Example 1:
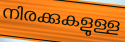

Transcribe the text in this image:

നിരക്കുകളുള്ള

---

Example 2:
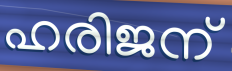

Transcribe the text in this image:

ഹരിജന്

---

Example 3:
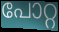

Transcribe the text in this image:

പോറ്റ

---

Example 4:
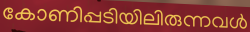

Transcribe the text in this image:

കോണിപ്പടിയിലിരുന്നവൾ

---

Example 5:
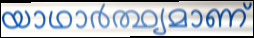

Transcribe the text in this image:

യാഥാർത്ഥ്യമാണ്